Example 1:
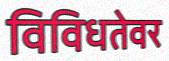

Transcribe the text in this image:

विविधतेवर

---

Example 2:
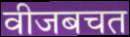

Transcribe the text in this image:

वीजबचत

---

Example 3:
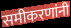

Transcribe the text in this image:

समीकरणांनी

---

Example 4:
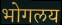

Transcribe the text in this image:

भोगलय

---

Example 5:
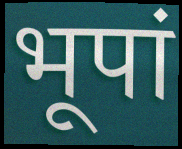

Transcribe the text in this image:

भूपां